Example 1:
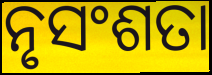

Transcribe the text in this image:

ନୃସଂଶତା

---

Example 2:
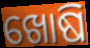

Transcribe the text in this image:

ଖୋଷି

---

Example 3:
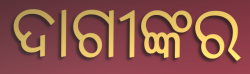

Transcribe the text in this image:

ଦାଗୀଙ୍କର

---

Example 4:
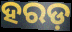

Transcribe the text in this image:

ହରଡ଼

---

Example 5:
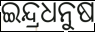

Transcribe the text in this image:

ଇନ୍ଦ୍ରଧନୁଷ